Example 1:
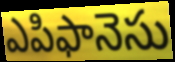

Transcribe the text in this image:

ఎపిఫానెసు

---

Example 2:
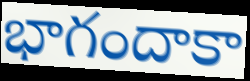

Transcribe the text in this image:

భాగందాకా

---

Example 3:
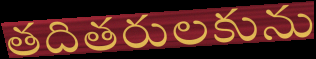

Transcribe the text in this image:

తదితరులకును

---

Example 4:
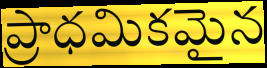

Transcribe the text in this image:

ప్రాధమికమైన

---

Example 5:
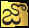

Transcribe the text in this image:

జొ